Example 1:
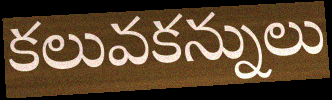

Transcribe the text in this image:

కలువకన్నులు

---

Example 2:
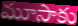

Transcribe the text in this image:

మూసాకు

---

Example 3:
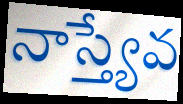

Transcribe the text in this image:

నాస్త్యేవ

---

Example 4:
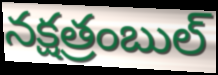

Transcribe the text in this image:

నక్షత్రంబుల్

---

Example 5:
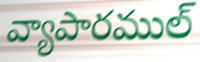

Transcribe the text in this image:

వ్యాపారముల్